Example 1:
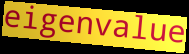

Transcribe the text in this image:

eigenvalue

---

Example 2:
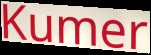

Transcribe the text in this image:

Kumer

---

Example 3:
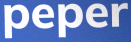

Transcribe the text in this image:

peper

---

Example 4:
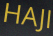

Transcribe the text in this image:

HAJI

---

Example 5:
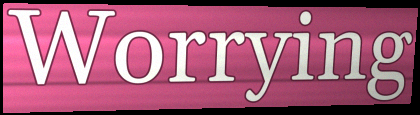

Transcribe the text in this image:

Worrying